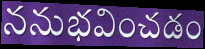
ననుభవించడం